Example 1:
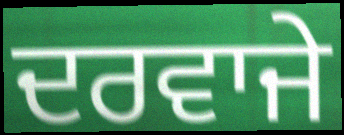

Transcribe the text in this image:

ਦਰਵਾਜੇ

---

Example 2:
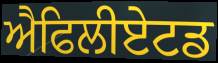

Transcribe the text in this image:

ਐਫਿਲੀਏਟਡ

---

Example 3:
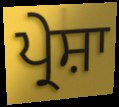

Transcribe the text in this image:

ਪ੍ਰੇਸ਼ਾ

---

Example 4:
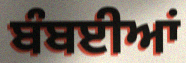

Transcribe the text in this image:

ਬੰਬਈਆਂ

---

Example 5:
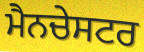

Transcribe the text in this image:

ਮੈਨਚੇਸਟਰ